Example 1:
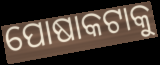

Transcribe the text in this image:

ପୋଷାକଟାକୁ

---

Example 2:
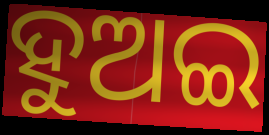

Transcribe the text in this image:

ହୁଅଇ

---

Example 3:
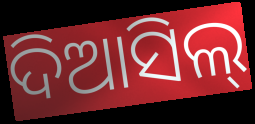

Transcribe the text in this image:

ଦିଆସିଲ୍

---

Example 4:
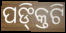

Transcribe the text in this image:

ପଙ୍କ୍ତିଟି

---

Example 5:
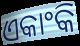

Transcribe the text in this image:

ଏକାଂକି